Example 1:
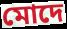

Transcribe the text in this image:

মোদে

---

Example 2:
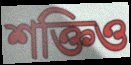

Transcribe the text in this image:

শক্তিও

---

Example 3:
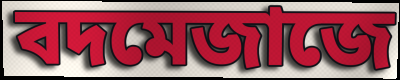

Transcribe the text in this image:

বদমেজাজে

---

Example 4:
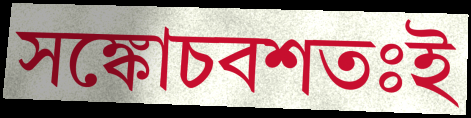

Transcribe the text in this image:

সঙ্কোচবশতঃই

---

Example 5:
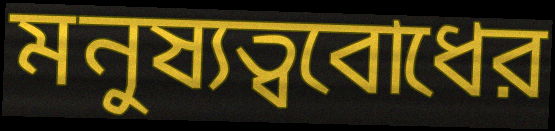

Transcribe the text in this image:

মনুষ্যত্ববোধের